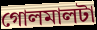
গোলমালটা